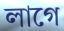
লাগে